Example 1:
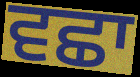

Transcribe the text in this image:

ਵਛਾ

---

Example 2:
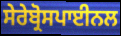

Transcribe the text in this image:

ਸੇਰੇਬ੍ਰੋਸਪਾਈਨਲ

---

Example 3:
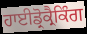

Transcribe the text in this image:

ਹਾਈਡ੍ਰੋਕ੍ਰੈਕਿੰਗ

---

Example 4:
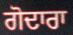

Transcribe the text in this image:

ਗੋਦਾਰਾ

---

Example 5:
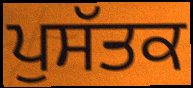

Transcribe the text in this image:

ਪੁਸੱਤਕ